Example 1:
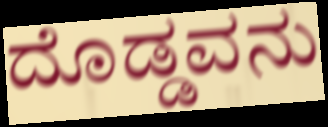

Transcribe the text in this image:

ದೊಡ್ಡವನು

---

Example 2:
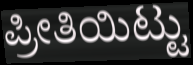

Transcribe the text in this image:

ಪ್ರೀತಿಯಿಟ್ಟು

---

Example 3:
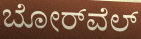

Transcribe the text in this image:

ಬೋರ್‌ವೆಲ್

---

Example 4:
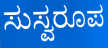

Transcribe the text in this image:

ಸುಸ್ವರೂಪ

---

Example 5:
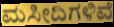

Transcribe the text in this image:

ಮಸೀದಿಗಳಿವೆ